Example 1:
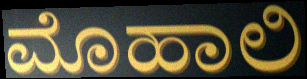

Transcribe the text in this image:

ಮೊಹಾಲಿ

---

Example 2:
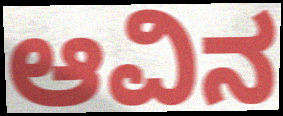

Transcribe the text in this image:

ಆವಿನ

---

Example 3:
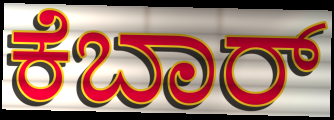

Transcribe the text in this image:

ಕೆಬಾರ್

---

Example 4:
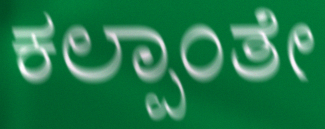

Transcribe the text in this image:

ಕಲ್ಪಾಂತೇ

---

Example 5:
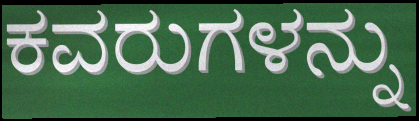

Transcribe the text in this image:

ಕವರುಗಳನ್ನು